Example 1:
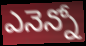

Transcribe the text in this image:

ఎనెన్నో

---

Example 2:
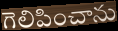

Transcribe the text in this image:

గెలిపించాను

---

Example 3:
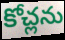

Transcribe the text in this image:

కోచ్లను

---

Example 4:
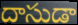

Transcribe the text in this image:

దాసుడా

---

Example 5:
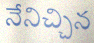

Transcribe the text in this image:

నేనిచ్చిన